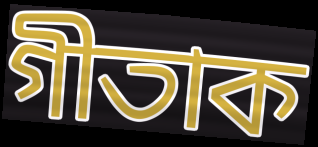
গীতাক